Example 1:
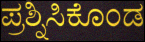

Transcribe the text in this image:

ಪ್ರಶ್ನಿಸಿಕೊಂಡ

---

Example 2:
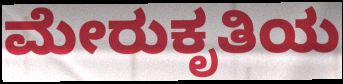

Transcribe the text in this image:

ಮೇರುಕೃತಿಯ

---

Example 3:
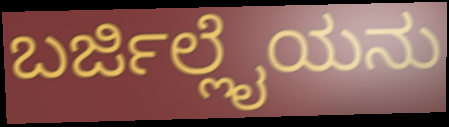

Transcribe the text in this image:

ಬರ್ಜಿಲ್ಲೈಯನು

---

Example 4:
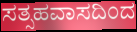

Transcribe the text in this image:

ಸತ್ಸಹವಾಸದಿಂದ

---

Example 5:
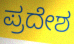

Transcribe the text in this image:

ಪ್ರದೇಶ